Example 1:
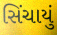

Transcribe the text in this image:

સિંચાયું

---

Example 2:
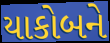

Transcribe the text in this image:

યાકોબને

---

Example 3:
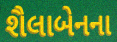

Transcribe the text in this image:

શૈલાબેનના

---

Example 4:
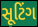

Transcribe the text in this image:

સૂટિંગ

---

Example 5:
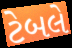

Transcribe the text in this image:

ટેબલે